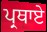
ਪ੍ਰਥਾਏ